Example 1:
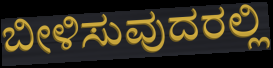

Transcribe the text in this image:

ಬೀಳಿಸುವುದರಲ್ಲಿ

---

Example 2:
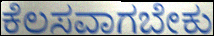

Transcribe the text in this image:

ಕೆಲಸವಾಗಬೇಕು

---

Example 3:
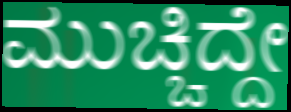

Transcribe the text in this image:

ಮುಚ್ಚಿದ್ದೇ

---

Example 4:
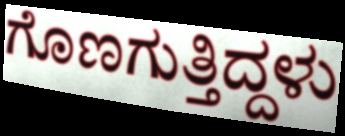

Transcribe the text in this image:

ಗೊಣಗುತ್ತಿದ್ದಳು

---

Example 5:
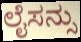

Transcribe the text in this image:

ಲೈಸನ್ಸು